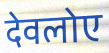
देवलोए